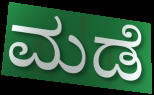
ಮಡೆ